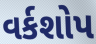
વર્કશોપ